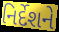
નિર્દેશને